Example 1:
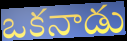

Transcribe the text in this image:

ఒకనాడు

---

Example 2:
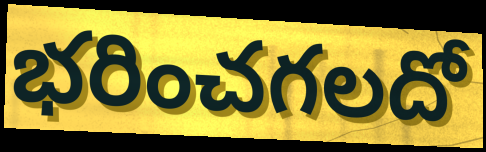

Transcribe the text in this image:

భరించగలదో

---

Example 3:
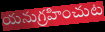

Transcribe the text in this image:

యనుగ్రహించుట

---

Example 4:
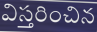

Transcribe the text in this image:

విస్తరించిన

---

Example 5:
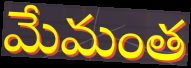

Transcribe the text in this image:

మేమంత